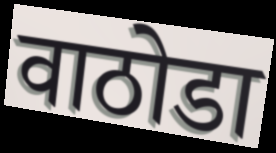
वाठोडा